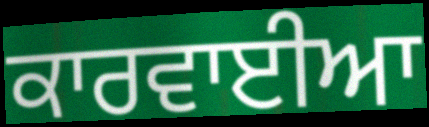
ਕਾਰਵਾਈਆ